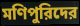
মণিপুরিদের